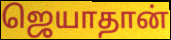
ஜெயாதான்